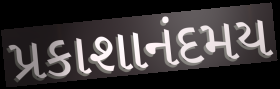
પ્રકાશાનંદમય